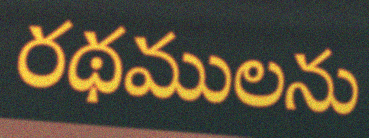
రథములను